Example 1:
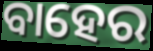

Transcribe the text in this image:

ବାହେର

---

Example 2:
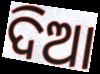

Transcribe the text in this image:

ଦିଆ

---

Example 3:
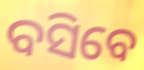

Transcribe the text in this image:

ବସିବେ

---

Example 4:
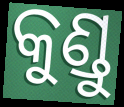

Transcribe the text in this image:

କୁଣ୍ଡୁ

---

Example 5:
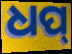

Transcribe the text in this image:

ଧପ୍